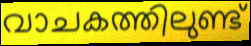
വാചകത്തിലുണ്ട്